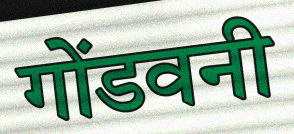
गोंडवनी